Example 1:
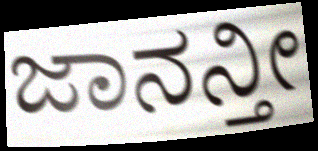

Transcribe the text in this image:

ಜಾನನ್ತೀ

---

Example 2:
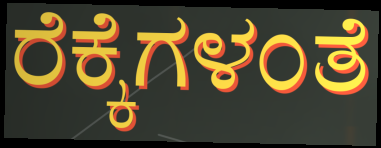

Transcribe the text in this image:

ರೆಕ್ಕೆಗಳಂತೆ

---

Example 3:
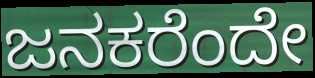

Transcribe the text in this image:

ಜನಕರೆಂದೇ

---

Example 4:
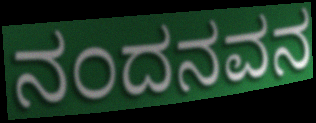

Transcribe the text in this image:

ನಂದನವನ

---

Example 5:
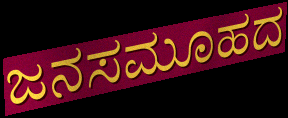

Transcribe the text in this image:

ಜನಸಮೂಹದ